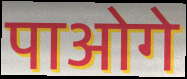
पाओगे